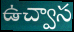
ఉచ్వాస